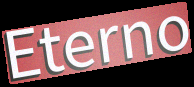
Eterno